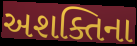
અશક્તિના